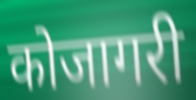
कोजागरी